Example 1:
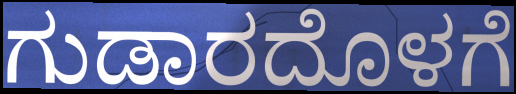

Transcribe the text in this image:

ಗುಡಾರದೊಳಗೆ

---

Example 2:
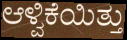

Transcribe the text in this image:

ಆಳ್ವಿಕೆಯಿತ್ತು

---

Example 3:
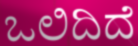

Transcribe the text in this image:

ಒಲಿದಿದೆ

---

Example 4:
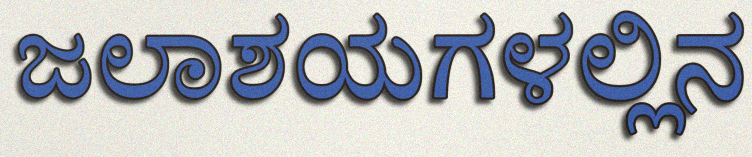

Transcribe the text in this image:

ಜಲಾಶಯಗಳಲ್ಲಿನ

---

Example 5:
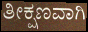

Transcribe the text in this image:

ತೀಕ್ಷಣವಾಗಿ